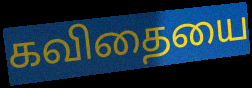
கவிதையை